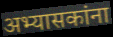
अभ्यासकांना